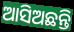
ଆସିଅଛନ୍ତି